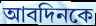
আবদিনকে